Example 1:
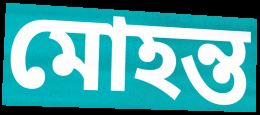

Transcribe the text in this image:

মোহন্ত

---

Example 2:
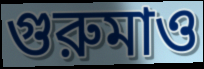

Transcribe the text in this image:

গুরুমাও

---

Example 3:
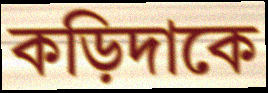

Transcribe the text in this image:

কড়িদাকে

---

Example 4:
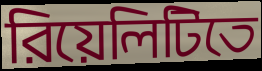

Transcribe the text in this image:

রিয়েলিটিতে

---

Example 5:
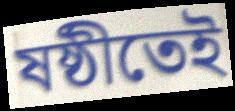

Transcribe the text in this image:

ষষ্ঠীতেই